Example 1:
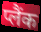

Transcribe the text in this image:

प्लैंक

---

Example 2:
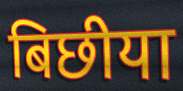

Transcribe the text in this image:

बिछीया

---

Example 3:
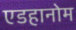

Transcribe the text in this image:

एडहानोम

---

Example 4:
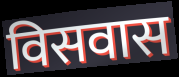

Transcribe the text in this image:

विसवास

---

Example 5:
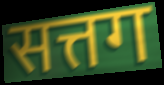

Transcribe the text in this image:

सत्तग